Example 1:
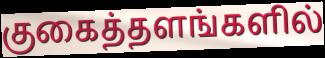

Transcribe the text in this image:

குகைத்தளங்களில்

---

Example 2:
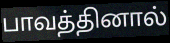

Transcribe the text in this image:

பாவத்தினால்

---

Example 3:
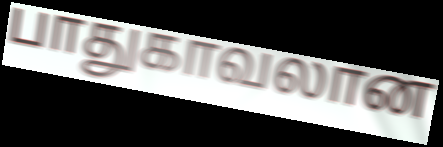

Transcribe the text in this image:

பாதுகாவலான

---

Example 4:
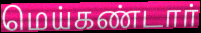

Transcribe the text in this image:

மெய்கண்டார்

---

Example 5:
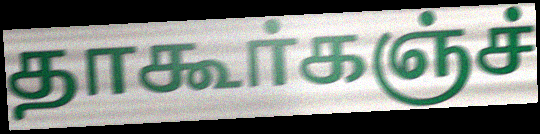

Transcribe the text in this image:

தாகூர்கஞ்ச்